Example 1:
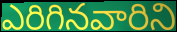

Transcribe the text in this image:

ఎరిగినవారిని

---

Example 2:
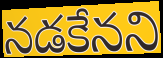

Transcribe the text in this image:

నడకేనని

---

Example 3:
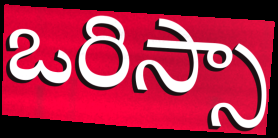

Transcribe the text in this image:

ఒరిస్సా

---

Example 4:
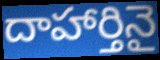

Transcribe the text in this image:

దాహార్తినై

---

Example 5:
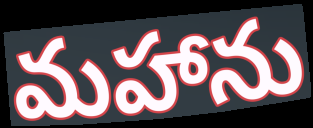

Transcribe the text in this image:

మహాను